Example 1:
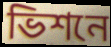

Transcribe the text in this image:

ভিশনে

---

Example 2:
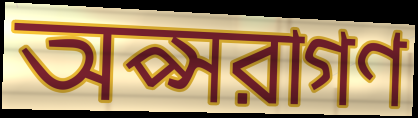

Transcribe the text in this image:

অপ্সরাগণ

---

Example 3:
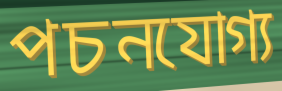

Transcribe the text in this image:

পচনযোগ্য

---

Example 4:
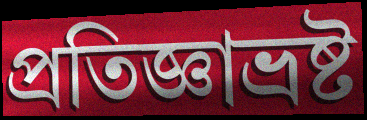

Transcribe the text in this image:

প্রতিজ্ঞাভ্রষ্ট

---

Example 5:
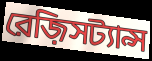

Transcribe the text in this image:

রেজ়িসট্যান্স